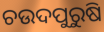
ଚଉଦପୁରୁଷି